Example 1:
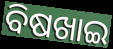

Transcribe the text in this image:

ବିଷଖାଇ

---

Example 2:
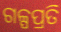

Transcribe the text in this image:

ଗଳ୍ପପ୍ରତି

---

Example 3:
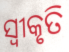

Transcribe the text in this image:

ସ୍ୱୀକୃତି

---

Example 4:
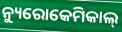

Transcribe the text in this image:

ନ୍ୟୁରୋକେମିକାଲ୍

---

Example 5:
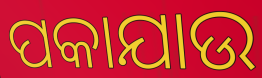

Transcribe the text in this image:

ପକାଯାଉ